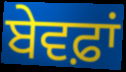
ਬੇਵਫ਼ਾਂ